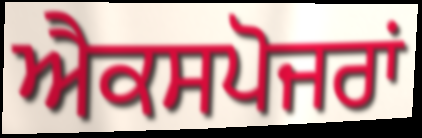
ਐਕਸਪੋਜਰਾਂ